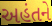
અહંતને